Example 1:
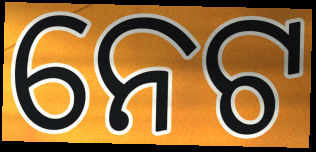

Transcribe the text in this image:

ନେଟ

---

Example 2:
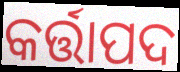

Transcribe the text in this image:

କର୍ତ୍ତାପଦ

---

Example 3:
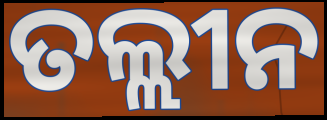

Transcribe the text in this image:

ତଲ୍ଲୀନ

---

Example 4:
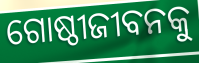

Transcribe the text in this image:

ଗୋଷ୍ଠୀଜୀବନକୁ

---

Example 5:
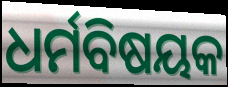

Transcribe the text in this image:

ଧର୍ମବିଷୟକ